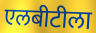
एलबीटीला